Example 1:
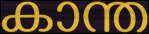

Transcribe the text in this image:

കാന്ത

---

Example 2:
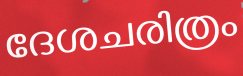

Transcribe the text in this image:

ദേശചരിത്രം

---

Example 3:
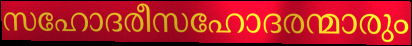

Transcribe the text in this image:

സഹോദരീസഹോദരന്മാരും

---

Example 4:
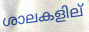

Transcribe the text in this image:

ശാലകളില്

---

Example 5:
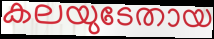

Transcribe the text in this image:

കലയുടേതായ